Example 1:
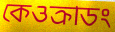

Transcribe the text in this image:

কেওক্রাডং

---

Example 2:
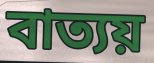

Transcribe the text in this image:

বাত্যয়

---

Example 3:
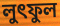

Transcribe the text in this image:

লুৎফুল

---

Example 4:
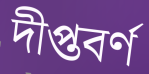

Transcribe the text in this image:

দীপ্তবর্ণ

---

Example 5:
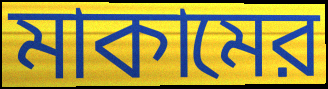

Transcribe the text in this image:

মাকামের